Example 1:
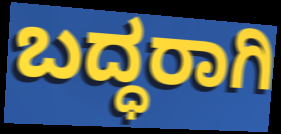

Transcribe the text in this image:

ಬದ್ಧರಾಗಿ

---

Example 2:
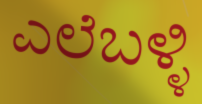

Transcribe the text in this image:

ಎಲೆಬಳ್ಳಿ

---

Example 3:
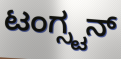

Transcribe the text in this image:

ಟಂಗ್ಸ್ಟನ್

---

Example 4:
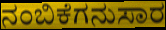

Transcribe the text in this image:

ನಂಬಿಕೆಗನುಸಾರ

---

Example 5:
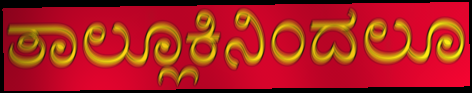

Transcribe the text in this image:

ತಾಲ್ಲೂಕಿನಿಂದಲೂ